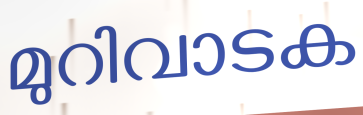
മുറിവാടക